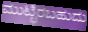
ಮುಟ್ಟಿರಬಹುದು